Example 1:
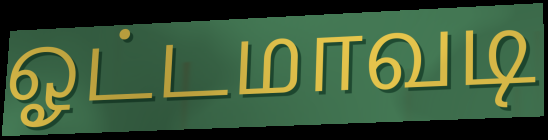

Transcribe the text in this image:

ஓட்டமாவடி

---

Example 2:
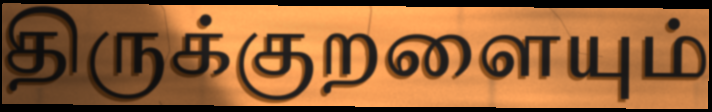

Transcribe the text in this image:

திருக்குறளையும்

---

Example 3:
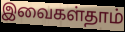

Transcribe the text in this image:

இவைகள்தாம்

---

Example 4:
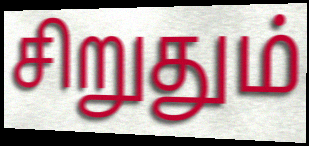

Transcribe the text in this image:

சிறுதும்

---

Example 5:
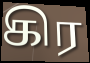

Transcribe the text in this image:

கிர